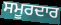
ਸਮੂਰਦਾਰ